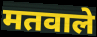
मतवाले